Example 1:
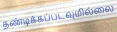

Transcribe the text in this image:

தண்டிக்கப்படவுமில்லை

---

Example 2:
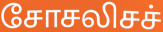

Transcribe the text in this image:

சோசலிசச்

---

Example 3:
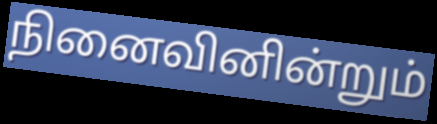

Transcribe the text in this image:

நினைவினின்றும்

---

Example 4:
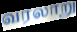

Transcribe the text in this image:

வரலாறு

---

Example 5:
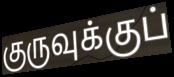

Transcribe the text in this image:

குருவுக்குப்